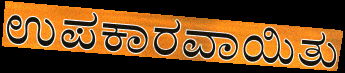
ಉಪಕಾರವಾಯಿತು